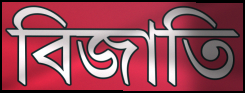
বিজাতি